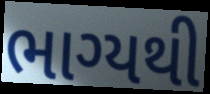
ભાગ્યથી